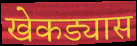
खेकड्यास